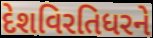
દેશવિરતિધરને